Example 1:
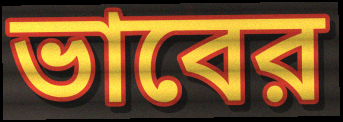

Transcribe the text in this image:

ভাবের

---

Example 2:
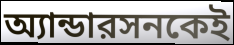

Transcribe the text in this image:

অ্যান্ডারসনকেই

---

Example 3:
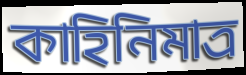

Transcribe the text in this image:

কাহিনিমাত্র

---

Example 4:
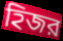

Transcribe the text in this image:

হিজর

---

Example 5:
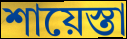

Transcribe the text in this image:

শায়েস্তা